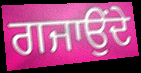
ਗਜਾਉਂਦੇ